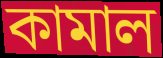
কামাল